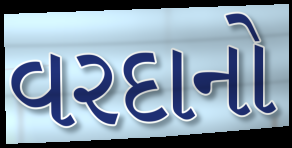
વરદાનો